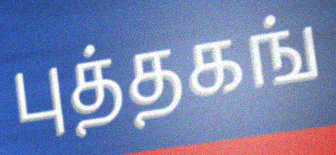
புத்தகங்